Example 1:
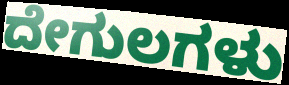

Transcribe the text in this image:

ದೇಗುಲಗಳು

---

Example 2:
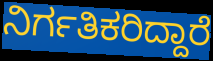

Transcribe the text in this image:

ನಿರ್ಗತಿಕರಿದ್ದಾರೆ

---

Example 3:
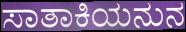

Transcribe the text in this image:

ಸಾತಾಕಿಯನುನ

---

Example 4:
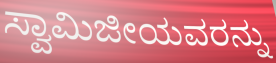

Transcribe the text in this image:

ಸ್ವಾಮಿಜೀಯವರನ್ನು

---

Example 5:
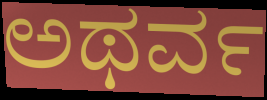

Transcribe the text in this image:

ಅಥರ್ವ